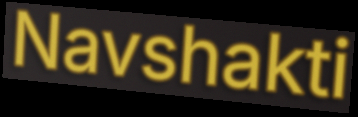
Navshakti